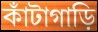
কাঁটাগাড়ি